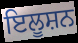
ਇਲੂਸ਼ਨ